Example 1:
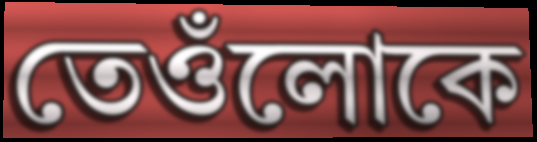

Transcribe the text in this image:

তেওঁলোকে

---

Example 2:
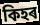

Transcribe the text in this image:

কিহৰ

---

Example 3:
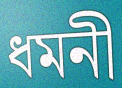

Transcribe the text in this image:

ধমনী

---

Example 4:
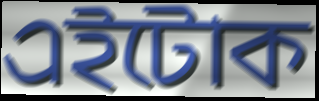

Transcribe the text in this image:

এইটোক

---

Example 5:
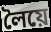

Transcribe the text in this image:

লৈয়ে